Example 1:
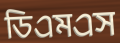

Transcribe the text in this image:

ডিএমএস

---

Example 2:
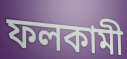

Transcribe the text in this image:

ফলকামী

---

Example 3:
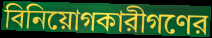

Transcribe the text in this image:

বিনিয়োগকারীগণের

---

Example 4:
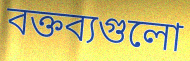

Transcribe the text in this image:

বক্তব্যগুলো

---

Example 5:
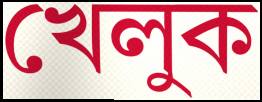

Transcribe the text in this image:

খেলুক